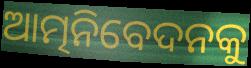
ଆତ୍ମନିବେଦନକୁ